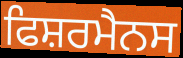
ਫਿਸ਼ਰਮੈਨਸ